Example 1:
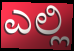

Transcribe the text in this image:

ಎಲ್ಲಿ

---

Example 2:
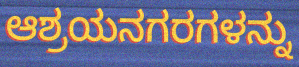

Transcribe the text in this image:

ಆಶ್ರಯನಗರಗಳನ್ನು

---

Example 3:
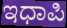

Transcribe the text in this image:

ಇಧಾಪಿ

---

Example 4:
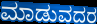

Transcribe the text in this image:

ಮಾಡುವದರ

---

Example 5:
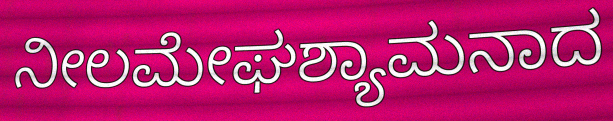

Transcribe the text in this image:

ನೀಲಮೇಘಶ್ಯಾಮನಾದ